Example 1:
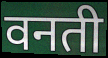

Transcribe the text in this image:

वनती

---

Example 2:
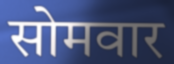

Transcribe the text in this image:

सोमवार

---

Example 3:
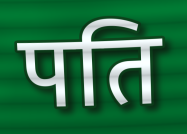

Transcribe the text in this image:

पति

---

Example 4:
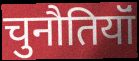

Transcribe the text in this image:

चुनौतियॉं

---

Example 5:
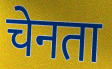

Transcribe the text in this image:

चेनता